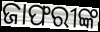
ଜାଫରୀଙ୍କ